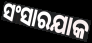
ସଂସାରଯାକ